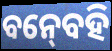
ବନ୍‍ବେହି